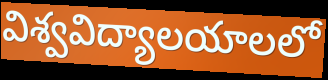
విశ్వవిద్యాలయాలలో